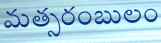
మత్సరంబులం